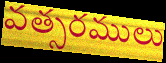
వత్సరములు